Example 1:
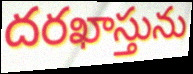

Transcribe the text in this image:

దరఖాస్తును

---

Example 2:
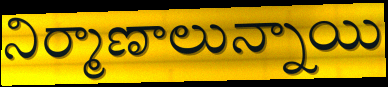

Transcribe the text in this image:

నిర్మాణాలున్నాయి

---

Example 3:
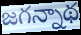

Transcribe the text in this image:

జగన్నాథ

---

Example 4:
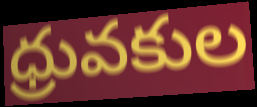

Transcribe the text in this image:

ధ్రువకుల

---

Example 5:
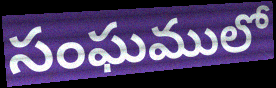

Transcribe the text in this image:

సంఘములో